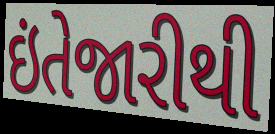
ઇંતેજારીથી